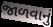
જાળવાનું